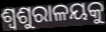
ଶ୍ୱଶୁରାଳୟକୁ